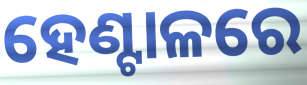
ହେଣ୍ଟାଳରେ